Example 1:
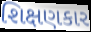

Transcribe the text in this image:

શિક્ષણકાર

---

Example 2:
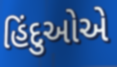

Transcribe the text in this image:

હિંદુઓએ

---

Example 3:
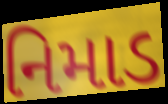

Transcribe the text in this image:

નિમાડ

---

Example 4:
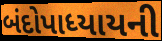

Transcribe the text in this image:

બંદોપાધ્યાયની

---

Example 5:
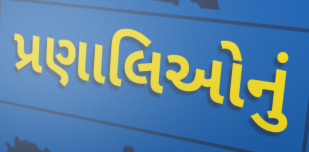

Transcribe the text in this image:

પ્રણાલિઓનું